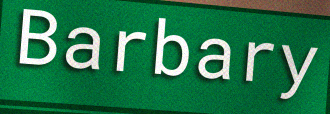
Barbary